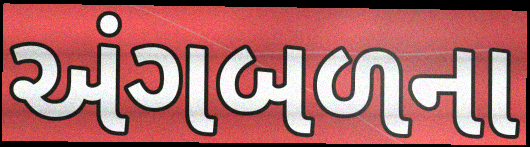
અંગબળના